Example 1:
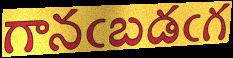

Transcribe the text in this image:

గానఁబడఁగ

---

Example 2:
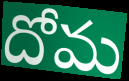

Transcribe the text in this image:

దోమ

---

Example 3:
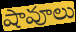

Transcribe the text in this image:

షావూలు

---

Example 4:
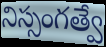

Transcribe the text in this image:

నిస్సంగత్వే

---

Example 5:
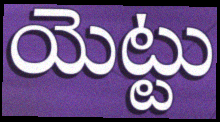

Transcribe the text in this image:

యెట్టు